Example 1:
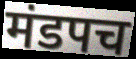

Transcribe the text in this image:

मंडपच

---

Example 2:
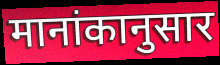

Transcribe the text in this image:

मानांकानुसार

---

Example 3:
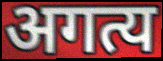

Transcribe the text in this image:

अगत्य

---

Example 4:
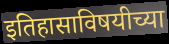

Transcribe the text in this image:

इतिहासाविषयीच्या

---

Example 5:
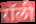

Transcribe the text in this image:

रॉली